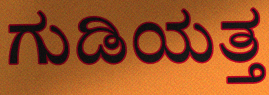
ಗುಡಿಯತ್ತ